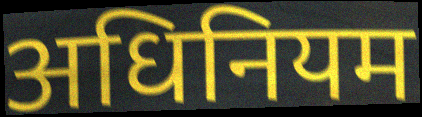
अधिनियम